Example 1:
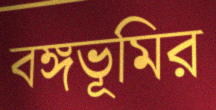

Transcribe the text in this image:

বঙ্গভূমির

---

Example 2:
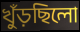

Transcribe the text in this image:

খুঁড়ছিলো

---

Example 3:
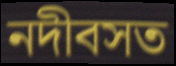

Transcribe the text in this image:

নদীবসত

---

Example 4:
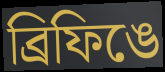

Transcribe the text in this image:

ব্রিফিঙে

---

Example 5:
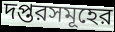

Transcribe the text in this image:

দপ্তরসমূহের